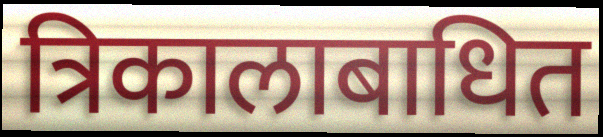
त्रिकालाबाधित